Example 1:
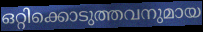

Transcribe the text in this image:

ഒറ്റിക്കൊടുത്തവനുമായ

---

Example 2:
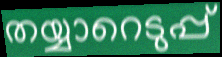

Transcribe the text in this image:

തയ്യാറെടുപ്പ്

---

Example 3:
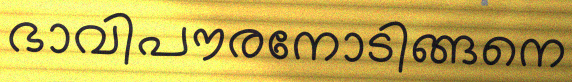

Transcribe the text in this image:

ഭാവിപൗരനോടിങ്ങനെ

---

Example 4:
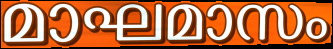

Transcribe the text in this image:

മാഘമാസം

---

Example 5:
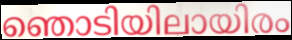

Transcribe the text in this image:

ഞൊടിയിലായിരം